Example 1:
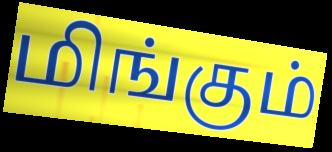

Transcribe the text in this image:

மிங்கும்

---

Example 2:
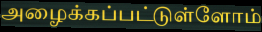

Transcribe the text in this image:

அழைக்கப்பட்டுள்ளோம்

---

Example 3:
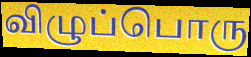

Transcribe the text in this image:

விழுப்பொரு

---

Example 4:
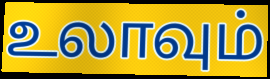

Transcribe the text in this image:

உலாவும்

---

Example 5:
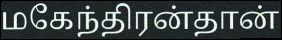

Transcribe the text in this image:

மகேந்திரன்தான்